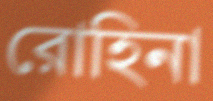
রোহিনা